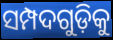
ସମ୍ପଦଗୁଡ଼ିକୁ